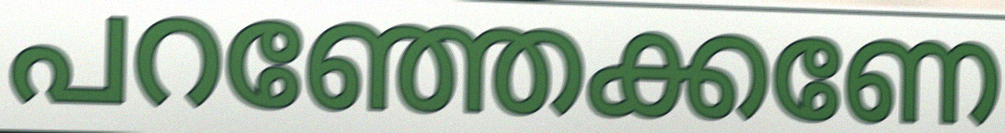
പറഞ്ഞേക്കണേ